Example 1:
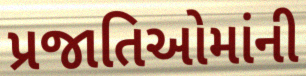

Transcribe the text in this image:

પ્રજાતિઓમાંની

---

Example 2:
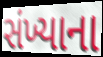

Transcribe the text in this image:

સંખ્યાના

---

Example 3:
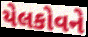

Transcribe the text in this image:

યેલકોવને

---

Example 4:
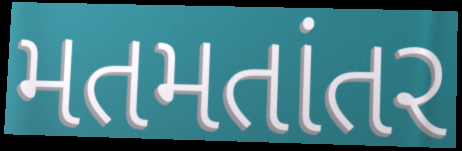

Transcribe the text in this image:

મતમતાંતર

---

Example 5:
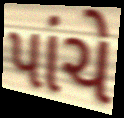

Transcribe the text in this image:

પાંચે